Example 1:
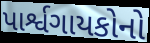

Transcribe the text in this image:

પાર્શ્વગાયકોનો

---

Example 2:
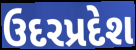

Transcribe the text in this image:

ઉદરપ્રદેશ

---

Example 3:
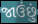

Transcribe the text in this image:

જાઉંછું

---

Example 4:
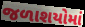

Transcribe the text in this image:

જળાશયોમાં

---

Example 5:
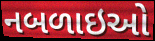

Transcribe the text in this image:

નબળાઇઓ